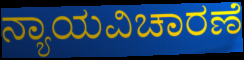
ನ್ಯಾಯವಿಚಾರಣೆ